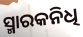
ସ୍ମାରକନିଧି